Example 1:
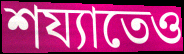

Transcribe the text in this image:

শয্যাতেও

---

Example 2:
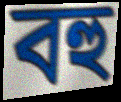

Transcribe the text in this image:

বহু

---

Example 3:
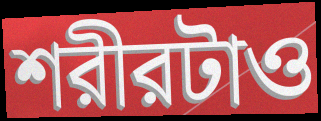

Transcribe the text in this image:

শরীরটাও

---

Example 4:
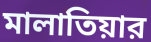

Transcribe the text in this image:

মালাতিয়ার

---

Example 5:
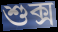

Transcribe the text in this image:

শুক্স